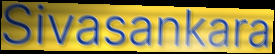
Sivasankara